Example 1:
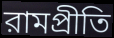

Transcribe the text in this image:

রামপ্রীতি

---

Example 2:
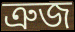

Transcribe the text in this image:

ত্রুজ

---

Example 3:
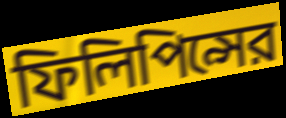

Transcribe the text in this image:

ফিলিপিন্সের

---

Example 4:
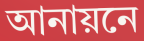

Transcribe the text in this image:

আনায়নে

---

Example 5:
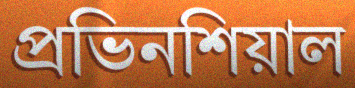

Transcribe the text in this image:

প্রভিনশিয়াল